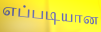
எப்படியான